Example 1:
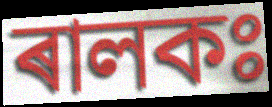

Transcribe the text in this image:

ৰালকঃ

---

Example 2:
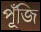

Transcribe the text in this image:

পূঁজি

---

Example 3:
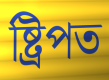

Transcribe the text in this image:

ষ্ট্ৰিপত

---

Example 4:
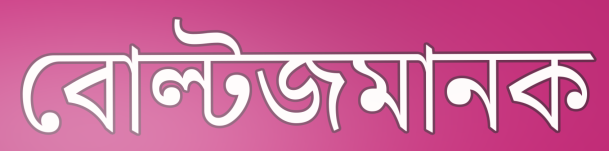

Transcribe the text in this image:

বোল্টজমানক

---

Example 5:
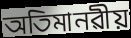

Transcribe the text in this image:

অতিমানৱীয়